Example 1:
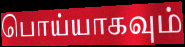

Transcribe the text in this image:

பொய்யாகவும்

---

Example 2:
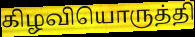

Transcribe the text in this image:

கிழவியொருத்தி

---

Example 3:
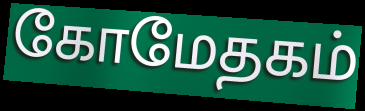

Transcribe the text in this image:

கோமேதகம்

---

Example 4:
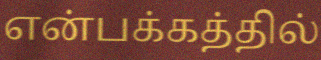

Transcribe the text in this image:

என்பக்கத்தில்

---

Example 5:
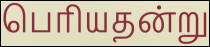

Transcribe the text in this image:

பெரியதன்று